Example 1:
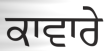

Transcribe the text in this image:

ਕਾਵਾਰੇ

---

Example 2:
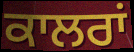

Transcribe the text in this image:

ਕਾਲਰਾਂ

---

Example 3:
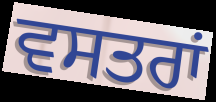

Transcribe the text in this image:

ਵਸਤਰਾਂ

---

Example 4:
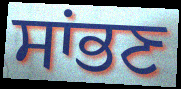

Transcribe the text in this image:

ਸਾਂਭਣ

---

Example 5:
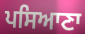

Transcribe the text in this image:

ਪਸਿਆਣਾ